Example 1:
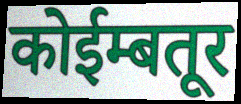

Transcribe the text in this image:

कोईम्बतूर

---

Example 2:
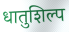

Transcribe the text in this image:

धातुशिल्प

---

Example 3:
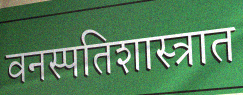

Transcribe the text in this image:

वनस्पतिशास्त्रात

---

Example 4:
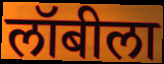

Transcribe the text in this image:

लॉबीला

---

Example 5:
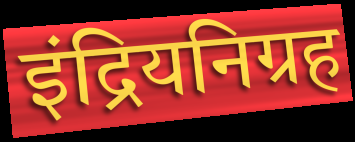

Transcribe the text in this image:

इंद्रियनिग्रह